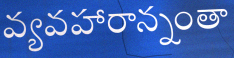
వ్యవహారాన్నంతా